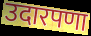
उदारपणा